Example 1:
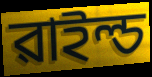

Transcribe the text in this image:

ৱাইল্ড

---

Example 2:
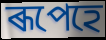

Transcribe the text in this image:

ৰূপেহে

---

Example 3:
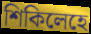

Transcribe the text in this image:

শিকিলেহে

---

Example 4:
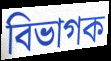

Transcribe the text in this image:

বিভাগক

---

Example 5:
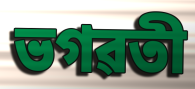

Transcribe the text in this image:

ভগৱতী